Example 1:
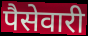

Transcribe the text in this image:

पैसेवारी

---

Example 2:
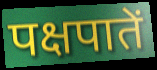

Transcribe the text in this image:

पक्षपातें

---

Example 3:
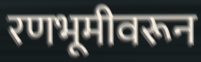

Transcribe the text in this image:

रणभूमीवरून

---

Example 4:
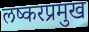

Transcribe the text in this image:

लष्करप्रमुख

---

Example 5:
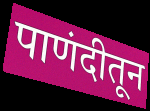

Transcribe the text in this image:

पाणंदीतून